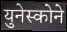
युनेस्कोने